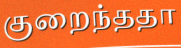
குறைந்ததா